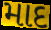
માદ